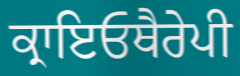
ਕ੍ਰਾਇਓਥੈਰੇਪੀ